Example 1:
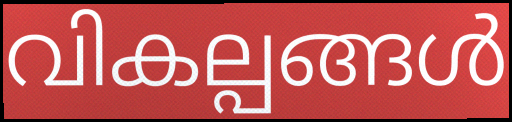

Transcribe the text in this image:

വികല്പങ്ങൾ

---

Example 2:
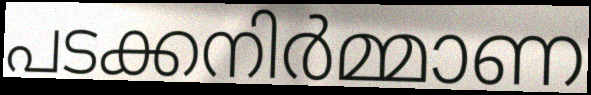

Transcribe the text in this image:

പടക്കനിർമ്മാണ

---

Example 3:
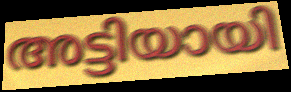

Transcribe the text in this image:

അട്ടിയായി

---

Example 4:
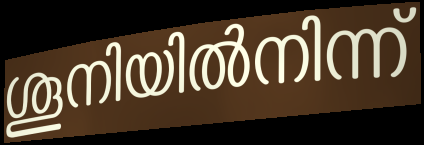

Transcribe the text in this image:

ശൂനിയിൽനിന്ന്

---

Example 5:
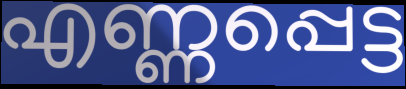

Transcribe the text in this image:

എണ്ണപ്പെട്ട